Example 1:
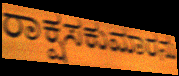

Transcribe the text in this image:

ರಾಕ್ಷಸಕುಮಾರನು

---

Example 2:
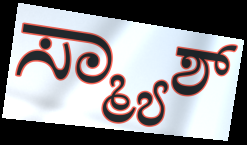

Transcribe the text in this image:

ಸ್ಮ್ಯಾಶ್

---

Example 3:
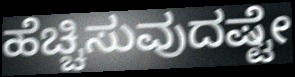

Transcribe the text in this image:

ಹೆಚ್ಚಿಸುವುದಷ್ಟೇ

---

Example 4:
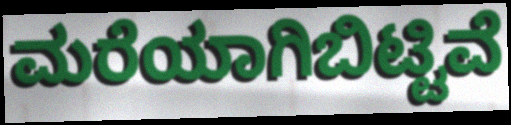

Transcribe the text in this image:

ಮರೆಯಾಗಿಬಿಟ್ಟಿವೆ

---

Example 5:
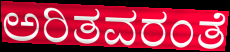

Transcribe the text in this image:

ಅರಿತವರಂತೆ